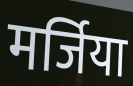
मर्जिया